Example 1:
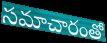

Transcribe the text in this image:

సమాచారంతో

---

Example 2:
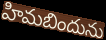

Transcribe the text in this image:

హిమబిందును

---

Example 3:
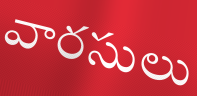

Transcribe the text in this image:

వారసులు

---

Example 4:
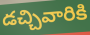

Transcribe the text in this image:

డచ్చివారికి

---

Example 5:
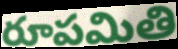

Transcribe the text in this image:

రూపమితి